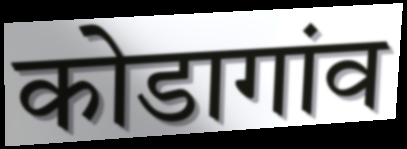
कोडागांव